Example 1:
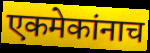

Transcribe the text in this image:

एकमेकांनाच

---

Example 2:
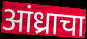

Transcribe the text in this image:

आंध्राचा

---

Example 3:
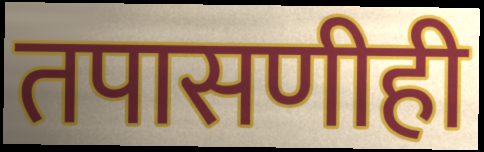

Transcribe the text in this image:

तपासणीही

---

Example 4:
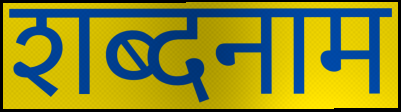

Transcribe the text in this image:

शब्दनाम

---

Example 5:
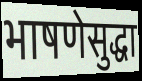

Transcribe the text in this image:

भाषणेसुद्धा